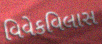
વિવેકવિલાસ